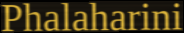
Phalaharini